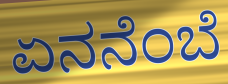
ಏನನೆಂಬೆ